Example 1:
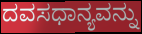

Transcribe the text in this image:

ದವಸಧಾನ್ಯವನ್ನು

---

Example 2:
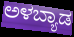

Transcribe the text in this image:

ಅಳಬ್ಯಾಡ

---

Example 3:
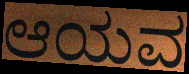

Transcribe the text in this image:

ಆಯವ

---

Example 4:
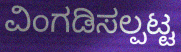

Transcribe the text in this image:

ವಿಂಗಡಿಸಲ್ಪಟ್ಟ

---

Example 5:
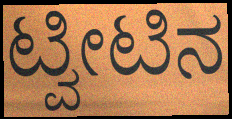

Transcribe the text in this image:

ಟ್ವೀಟಿನ